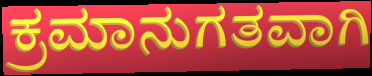
ಕ್ರಮಾನುಗತವಾಗಿ